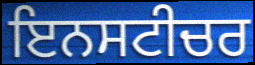
ਇਨਸਟੀਚਰ